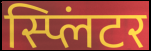
स्प्लिंटर